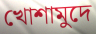
খোশামুদে